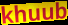
khuub